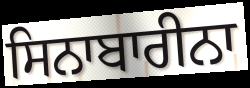
ਸਿਨਾਬਾਰੀਨਾ